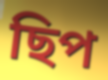
ছিপ